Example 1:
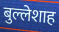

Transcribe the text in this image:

बुल्लेशाह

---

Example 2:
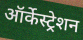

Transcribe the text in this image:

ऑर्केस्ट्रेशन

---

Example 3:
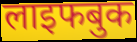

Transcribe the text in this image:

लाइफबुक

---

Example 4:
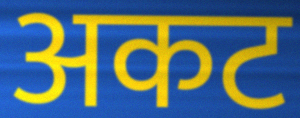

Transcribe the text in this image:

अकट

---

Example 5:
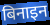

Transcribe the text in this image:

बिनाइन